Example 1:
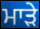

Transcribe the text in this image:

ਮਾੜੇ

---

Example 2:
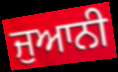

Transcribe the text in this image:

ਜੁਆਨੀ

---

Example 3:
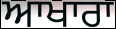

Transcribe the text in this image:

ਆਖਾਰਾ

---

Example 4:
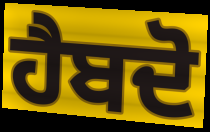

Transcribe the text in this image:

ਹੈਬਦੋ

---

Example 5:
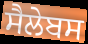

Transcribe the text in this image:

ਸੈਲੇਬਸ